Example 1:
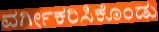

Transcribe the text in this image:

ವರ್ಗೀಕರಿಸಿಕೊಂಡು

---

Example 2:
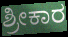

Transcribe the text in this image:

ಶ್ರೀಕಾರ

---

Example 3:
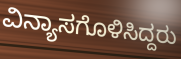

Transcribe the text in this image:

ವಿನ್ಯಾಸಗೊಳಿಸಿದ್ದರು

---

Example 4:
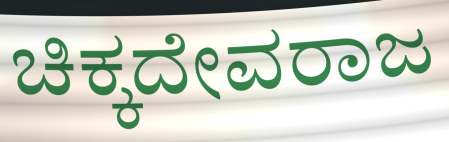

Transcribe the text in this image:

ಚಿಕ್ಕದೇವರಾಜ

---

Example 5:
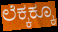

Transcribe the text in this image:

ಲೆಕ್ಕಕ್ಕೂ